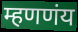
म्हणणंय